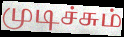
முடிச்சும்